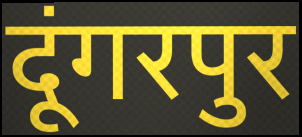
दूंगरपुर